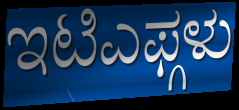
ಇಟಿಎಫ್ಗಳು